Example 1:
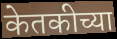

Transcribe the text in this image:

केतकीच्या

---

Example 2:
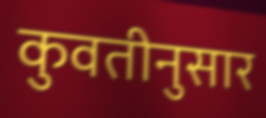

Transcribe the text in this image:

कुवतीनुसार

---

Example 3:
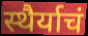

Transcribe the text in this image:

स्थैर्याचं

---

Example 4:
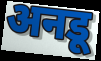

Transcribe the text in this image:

अनडू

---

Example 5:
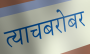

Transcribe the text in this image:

त्‍याचबरोबर